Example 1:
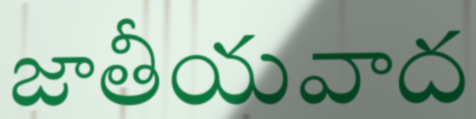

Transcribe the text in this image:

జాతీయవాద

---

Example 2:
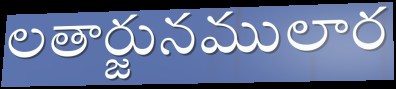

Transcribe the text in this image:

లతార్జునములార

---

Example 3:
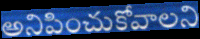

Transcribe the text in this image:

అనిపించుకోవాలని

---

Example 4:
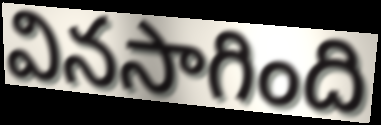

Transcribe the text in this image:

వినసాగింది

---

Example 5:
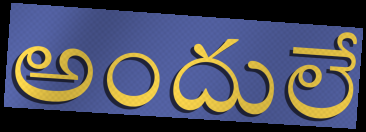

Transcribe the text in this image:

అందులే